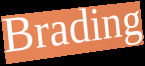
Brading